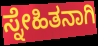
ಸ್ನೇಹಿತನಾಗಿ